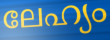
ലേഹ്യം